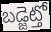
బడ్జెట్తో